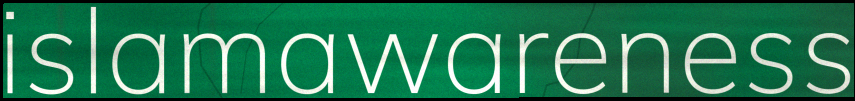
islamawareness